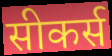
सीकर्स